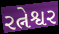
રત્નેશ્વર